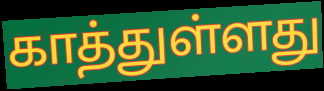
காத்துள்ளது